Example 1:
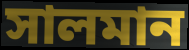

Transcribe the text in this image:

সালমান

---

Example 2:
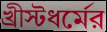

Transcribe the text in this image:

খ্রীস্টধর্মের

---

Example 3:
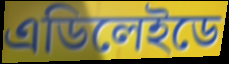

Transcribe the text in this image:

এডিলেইডে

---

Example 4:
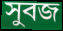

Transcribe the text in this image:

সুবজ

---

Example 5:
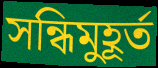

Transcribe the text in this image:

সন্ধিমুহূর্ত